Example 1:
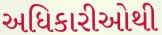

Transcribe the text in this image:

અધિકારીઓથી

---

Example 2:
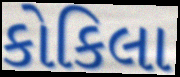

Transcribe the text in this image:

કોકિલા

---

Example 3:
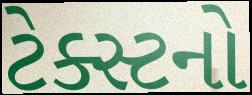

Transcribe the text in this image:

ટેક્સ્ટનો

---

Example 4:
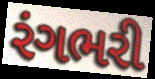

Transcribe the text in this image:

રંગભરી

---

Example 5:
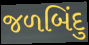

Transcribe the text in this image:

જળબિંદુ